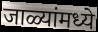
जाळ्यांमध्ये